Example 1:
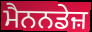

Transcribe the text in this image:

ਮੈਨਨਡੇਜ਼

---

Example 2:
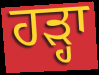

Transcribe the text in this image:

ਹੜ੍ਹਾ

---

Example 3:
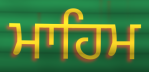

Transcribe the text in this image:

ਮਾਹਿਮ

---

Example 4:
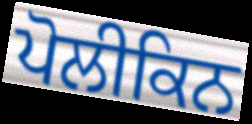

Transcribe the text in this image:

ਪੋਲੀਕਿਨ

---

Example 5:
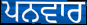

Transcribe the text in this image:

ਪਨਵਾਰ